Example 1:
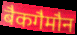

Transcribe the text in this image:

बैकगैमौन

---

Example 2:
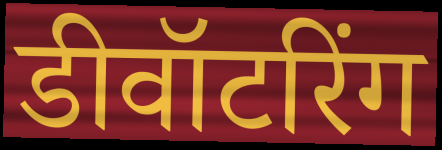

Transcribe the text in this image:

डीवॉटरिंग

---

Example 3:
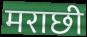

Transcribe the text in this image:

मराछी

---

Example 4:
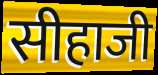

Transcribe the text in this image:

सीहाजी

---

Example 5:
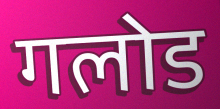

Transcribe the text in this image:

गलोड